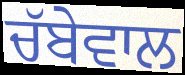
ਚੱਬੇਵਾਲ